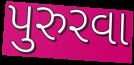
પુરુરવા